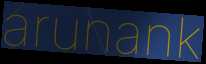
arunank